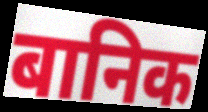
बानिक